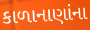
કાળાનાણાંના